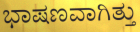
ಭಾಷಣವಾಗಿತ್ತು